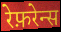
रेफ़रेन्स